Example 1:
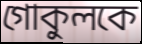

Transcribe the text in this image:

গোকুলকে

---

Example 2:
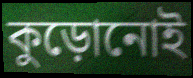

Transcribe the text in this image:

কুড়োনোই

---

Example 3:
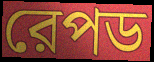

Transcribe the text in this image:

রেপড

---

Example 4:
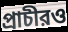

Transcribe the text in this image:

প্রাচীরও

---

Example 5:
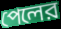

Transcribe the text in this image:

পেলের